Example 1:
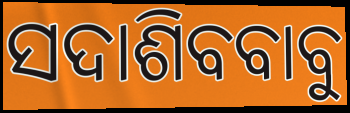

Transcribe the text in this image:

ସଦାଶିବବାବୁ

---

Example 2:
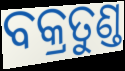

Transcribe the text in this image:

ବକ୍ରତୁଣ୍ଡ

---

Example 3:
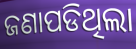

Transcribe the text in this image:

ଜଣାପଡିଥିଲା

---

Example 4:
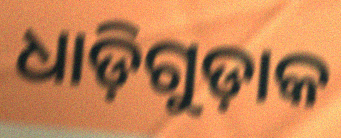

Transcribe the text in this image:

ଧାଡ଼ିଗୁଡ଼ାକ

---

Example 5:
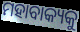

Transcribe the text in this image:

ମହାବାକ୍ୟକୁ